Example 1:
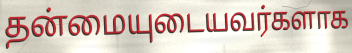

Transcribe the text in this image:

தன்மையுடையவர்களாக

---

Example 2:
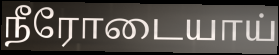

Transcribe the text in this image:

நீரோடையாய்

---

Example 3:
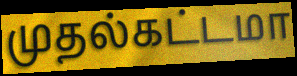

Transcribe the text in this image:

முதல்கட்டமா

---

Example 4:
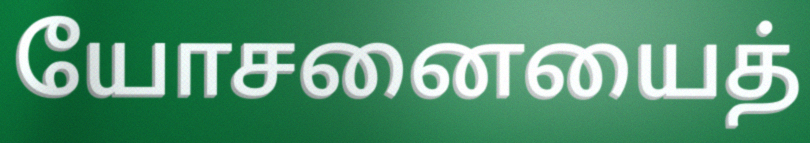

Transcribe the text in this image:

யோசனையைத்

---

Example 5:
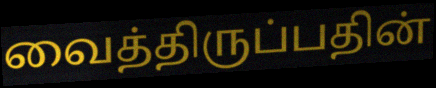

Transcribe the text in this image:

வைத்திருப்பதின்